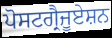
ਪੋਸਟਗ੍ਰੈਜੂਏਸ਼ਨ